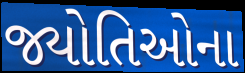
જ્યોતિઓના